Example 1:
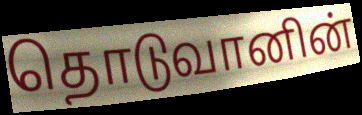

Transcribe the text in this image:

தொடுவானின்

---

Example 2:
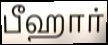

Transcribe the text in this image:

பீஹார்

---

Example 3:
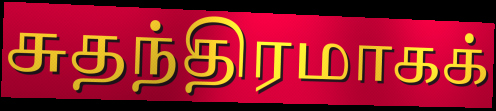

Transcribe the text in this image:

சுதந்திரமாகக்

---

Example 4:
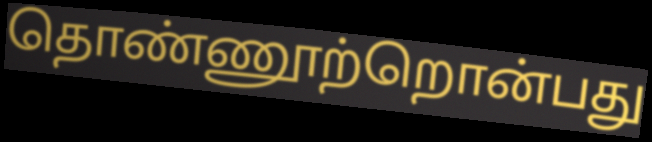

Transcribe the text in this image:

தொண்ணூற்றொன்பது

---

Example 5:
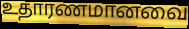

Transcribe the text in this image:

உதாரணமானவை